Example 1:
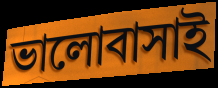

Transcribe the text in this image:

ভালোবাসাই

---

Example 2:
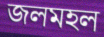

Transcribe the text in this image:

জলমহল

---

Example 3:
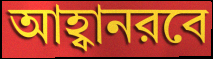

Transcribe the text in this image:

আহ্বানরবে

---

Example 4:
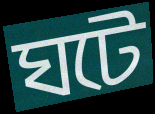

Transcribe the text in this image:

ঘটে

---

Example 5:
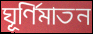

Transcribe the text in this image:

ঘূর্ণিমাতন